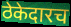
ठेकेदारच